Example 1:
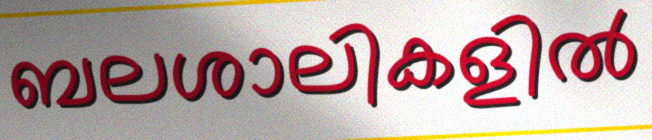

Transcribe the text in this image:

ബലശാലികളിൽ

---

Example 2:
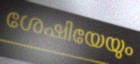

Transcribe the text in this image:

ശേഷിയേയും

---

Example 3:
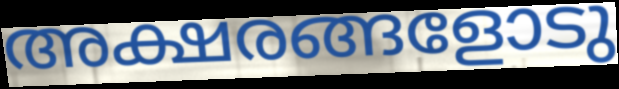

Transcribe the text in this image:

അക്ഷരങ്ങളോടു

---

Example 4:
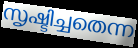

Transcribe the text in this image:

സൃഷ്ടിച്ചതെന്ന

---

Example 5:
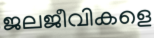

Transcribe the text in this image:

ജലജീവികളെ